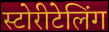
स्टोरीटेलिंग